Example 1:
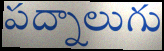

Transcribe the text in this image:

పద్నాలుగు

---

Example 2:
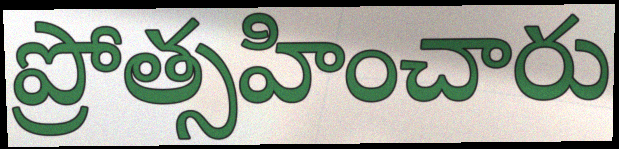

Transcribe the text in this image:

ప్రోత్సహించారు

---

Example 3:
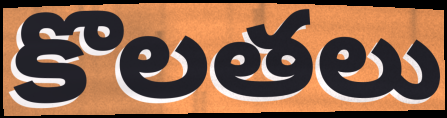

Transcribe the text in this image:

కొలతలు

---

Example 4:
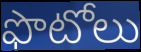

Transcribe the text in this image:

ఫొటోలు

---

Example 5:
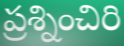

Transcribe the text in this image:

ప్రశ్నించిరి